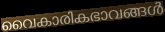
വൈകാരികഭാവങ്ങൾ